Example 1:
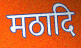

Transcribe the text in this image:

मठादि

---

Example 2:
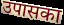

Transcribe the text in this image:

उपासका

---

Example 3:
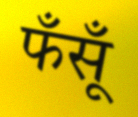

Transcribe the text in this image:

फँसूँ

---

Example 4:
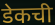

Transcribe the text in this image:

डेकची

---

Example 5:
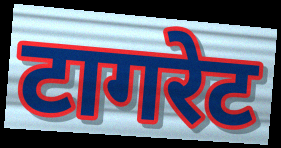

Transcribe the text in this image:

टागरेट